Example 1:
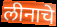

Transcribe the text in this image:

लीनाचे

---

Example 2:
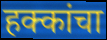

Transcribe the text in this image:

हक्कांचा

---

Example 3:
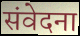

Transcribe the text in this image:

संवेदना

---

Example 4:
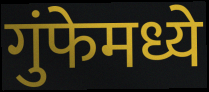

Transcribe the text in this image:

गुंफेमध्ये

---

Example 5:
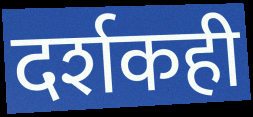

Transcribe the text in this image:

दर्शकही